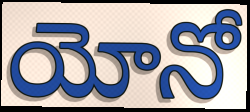
యోనో